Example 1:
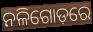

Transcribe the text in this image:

ନଳିଗୋଡ଼ରେ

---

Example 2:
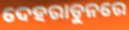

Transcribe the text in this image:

ଦେହରାଡୁନରେ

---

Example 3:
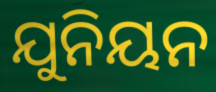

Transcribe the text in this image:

ଯୁନିୟନ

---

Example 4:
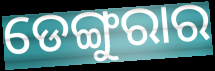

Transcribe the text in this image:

ଡେଙ୍ଗୁରାର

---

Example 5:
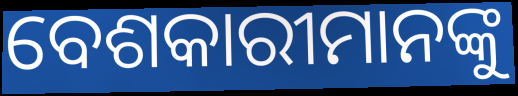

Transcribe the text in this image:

ବେଶକାରୀମାନଙ୍କୁ